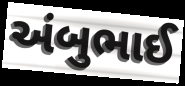
અંબુભાઈ